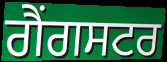
ਗੈਂਗਸਟਰ